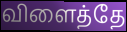
விளைத்தே